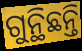
ଗୁନ୍ଥିଛନ୍ତି